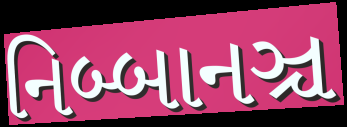
નિબ્બાનઞ્ચ